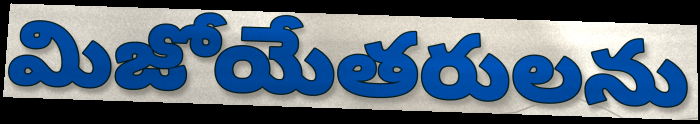
మిజోయేతరులను